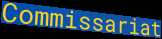
Commissariat